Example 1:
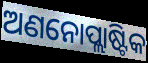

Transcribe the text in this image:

ଅଣନୋପ୍ଲାଷ୍ଟିକ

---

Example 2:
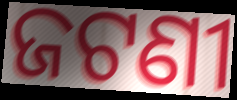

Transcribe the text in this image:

ଜଟଣୀ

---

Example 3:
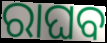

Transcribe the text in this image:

ରାଘବ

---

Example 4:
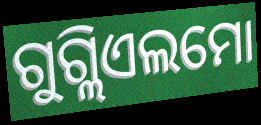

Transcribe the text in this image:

ଗୁଗ୍ଲିଏଲମୋ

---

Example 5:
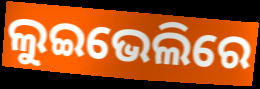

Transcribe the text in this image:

ଲୁଇଭେଲିରେ